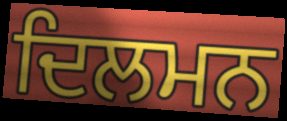
ਦਿਲਮਨ